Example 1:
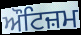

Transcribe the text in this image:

ਔਟਿਜ਼ਮ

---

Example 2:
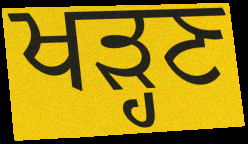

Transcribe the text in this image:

ਖੜ੍ਹਣ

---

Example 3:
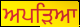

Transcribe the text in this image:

ਅਪੜਿਆ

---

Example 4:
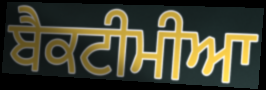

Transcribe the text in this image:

ਬੈਕਟੀਮੀਆ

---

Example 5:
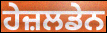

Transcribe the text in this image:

ਹੇਜ਼ਲਡੇਨ